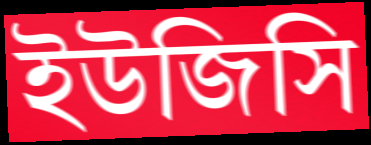
ইউজিসি